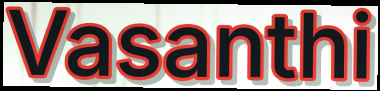
Vasanthi